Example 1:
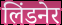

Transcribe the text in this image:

लिंडनेर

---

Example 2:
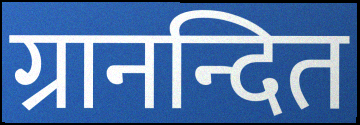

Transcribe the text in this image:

ग्रानन्दित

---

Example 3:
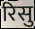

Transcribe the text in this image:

रिसु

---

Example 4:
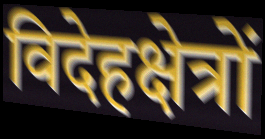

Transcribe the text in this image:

विदेहक्षेत्रों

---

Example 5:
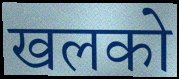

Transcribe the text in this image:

खलको